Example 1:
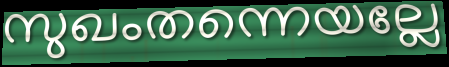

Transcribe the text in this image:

സുഖംതന്നെയല്ലേ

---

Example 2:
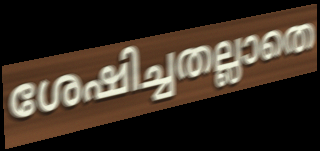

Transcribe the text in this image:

ശേഷിച്ചതല്ലാതെ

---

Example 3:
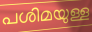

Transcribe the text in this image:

പശിമയുള്ള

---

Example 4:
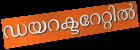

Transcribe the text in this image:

ഡയറക്ടറേറ്റിൽ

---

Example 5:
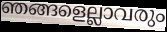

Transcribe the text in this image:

ഞങ്ങളെല്ലാവരും